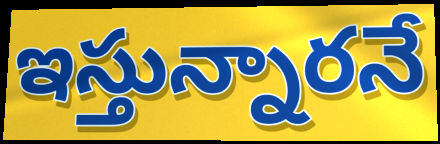
ఇస్తున్నారనే